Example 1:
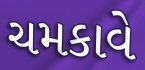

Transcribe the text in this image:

ચમકાવે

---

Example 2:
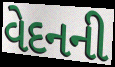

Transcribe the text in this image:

વેદનની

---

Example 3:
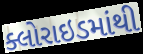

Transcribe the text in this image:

ક્લોરાઇડમાંથી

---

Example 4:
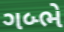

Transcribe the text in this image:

ગબ્ભે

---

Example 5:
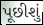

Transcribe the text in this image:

પૂછીશું